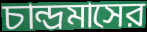
চান্দ্রমাসের